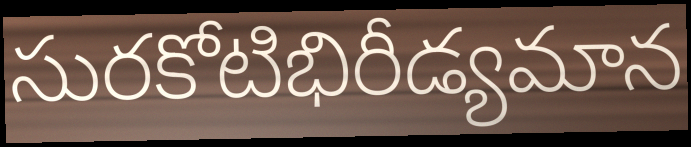
సురకోటిభిరీడ్యమాన